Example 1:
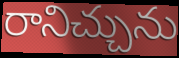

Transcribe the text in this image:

రానిచ్చును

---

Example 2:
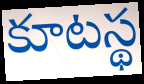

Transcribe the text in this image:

కూటస్థ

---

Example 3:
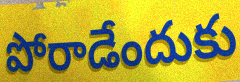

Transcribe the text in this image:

పోరాడేందుకు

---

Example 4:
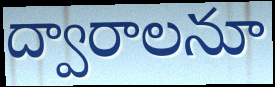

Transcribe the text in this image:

ద్వారాలనూ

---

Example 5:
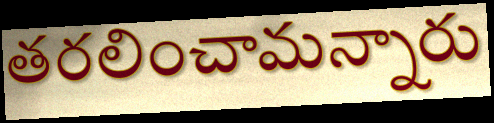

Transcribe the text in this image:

తరలించామన్నారు